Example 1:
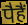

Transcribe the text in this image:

पैहैं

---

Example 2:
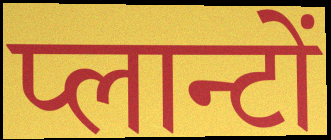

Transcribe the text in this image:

प्लान्टों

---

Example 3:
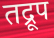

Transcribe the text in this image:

तद्रूप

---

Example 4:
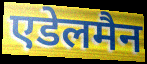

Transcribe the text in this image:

एडेलमैन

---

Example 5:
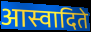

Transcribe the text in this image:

आस्वादिते